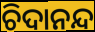
ଚିଦାନନ୍ଦ